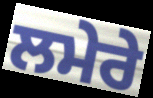
ਲਮੇਰੇ